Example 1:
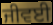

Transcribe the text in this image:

ਜੀਵਈ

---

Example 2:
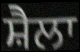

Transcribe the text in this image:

ਸ਼ੈਲਾ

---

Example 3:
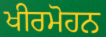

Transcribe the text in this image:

ਖੀਰਮੋਹਨ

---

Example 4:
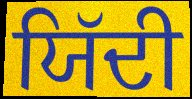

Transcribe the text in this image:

ਯਿੱਦੀ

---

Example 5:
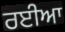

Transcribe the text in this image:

ਰਈਆ